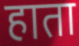
हाता